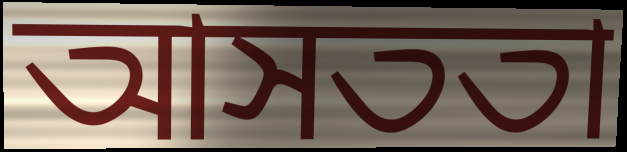
আসততা